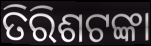
ତିରିଶଟଙ୍କା